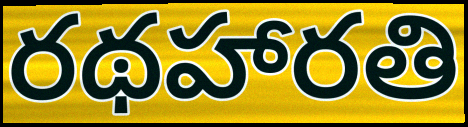
రథహారతి